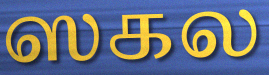
ஸகல